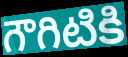
గౌగిటికి